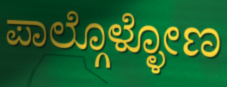
ಪಾಲ್ಗೊಳ್ಳೋಣ